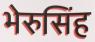
भेरुसिंह